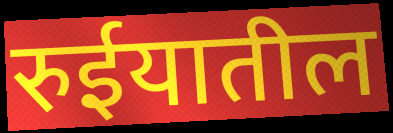
रुईयातील